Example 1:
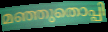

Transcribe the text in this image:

മഞ്ഞുതൊപ്പി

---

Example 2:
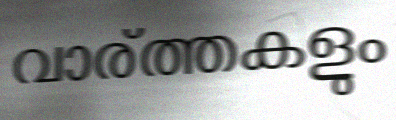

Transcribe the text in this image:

വാര്ത്തകളും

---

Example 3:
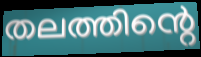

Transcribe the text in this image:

തലത്തിന്റെ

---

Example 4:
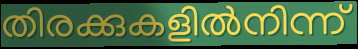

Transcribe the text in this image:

തിരക്കുകളിൽനിന്ന്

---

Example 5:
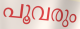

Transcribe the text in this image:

പൂവരും